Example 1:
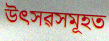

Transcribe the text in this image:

উৎসৱসমূহত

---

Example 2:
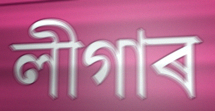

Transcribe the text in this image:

লীগাৰ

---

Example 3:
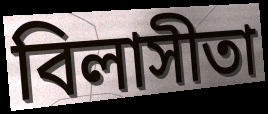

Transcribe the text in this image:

বিলাসীতা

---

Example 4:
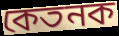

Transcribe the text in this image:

কেতনক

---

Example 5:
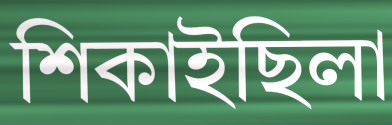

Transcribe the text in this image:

শিকাইছিলা